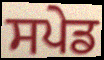
ਸਪੇਡ